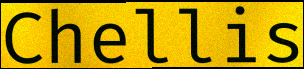
Chellis